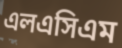
এলএসিএম